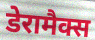
डेरामैक्स